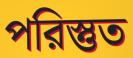
পরিস্তুত